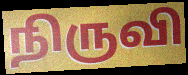
நிருவி